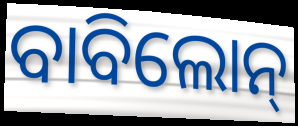
ବାବିଲୋନ୍